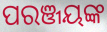
ପରଞ୍ଜୟଙ୍କ